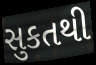
સુકતથી